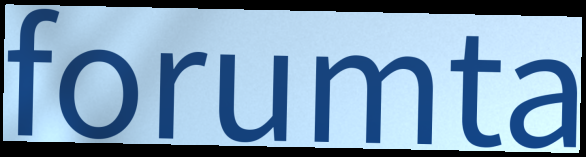
forumta